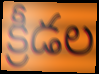
క్రీడల